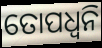
ତୋପଧ୍ୱନି